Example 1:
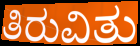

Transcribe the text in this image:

ತಿರುವಿತು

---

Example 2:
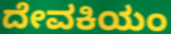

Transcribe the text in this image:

ದೇವಕಿಯಂ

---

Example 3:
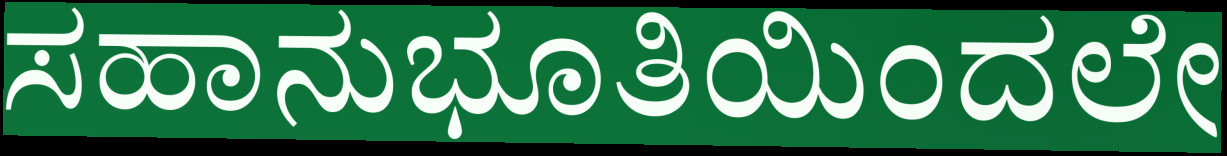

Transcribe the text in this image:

ಸಹಾನುಭೂತಿಯಿಂದಲೇ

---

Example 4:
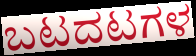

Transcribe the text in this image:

ಬಟದಟಗಳ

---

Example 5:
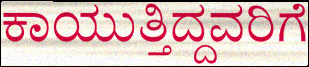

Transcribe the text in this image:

ಕಾಯುತ್ತಿದ್ದವರಿಗೆ